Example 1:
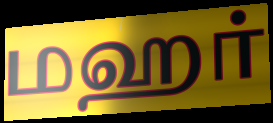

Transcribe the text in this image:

மஹர்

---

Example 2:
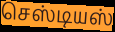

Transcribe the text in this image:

செஸ்டியஸ்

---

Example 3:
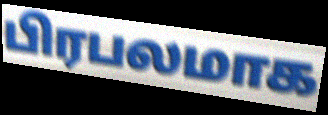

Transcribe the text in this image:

பிரபலமாக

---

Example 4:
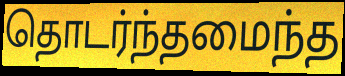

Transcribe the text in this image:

தொடர்ந்தமைந்த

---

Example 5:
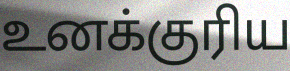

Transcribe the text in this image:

உனக்குரிய